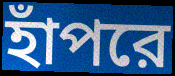
হাঁপরে